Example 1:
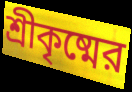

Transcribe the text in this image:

শ্রীকৃষ্মের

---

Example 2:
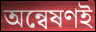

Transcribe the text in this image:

অন্বেষণই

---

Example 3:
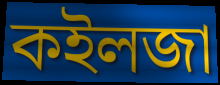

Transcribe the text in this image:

কইলজা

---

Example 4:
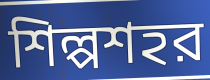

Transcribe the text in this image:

শিল্পশহর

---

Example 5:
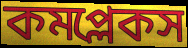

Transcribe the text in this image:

কমপ্লেকস